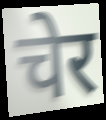
चेर